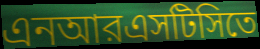
এনআরএসটিসিতে